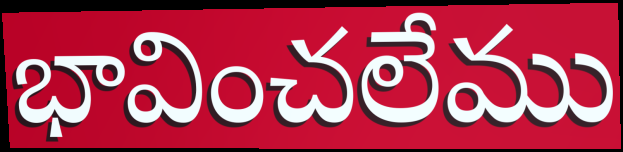
భావించలేము